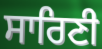
ਸਾਰਿਣੀ